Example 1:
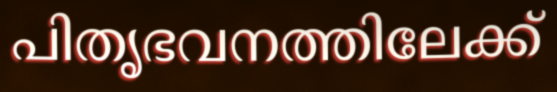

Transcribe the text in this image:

പിതൃഭവനത്തിലേക്ക്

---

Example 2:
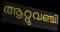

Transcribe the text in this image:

ആറ്റുവഞ്ചി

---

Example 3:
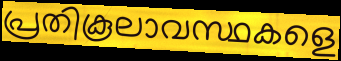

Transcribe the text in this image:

പ്രതികൂലാവസ്ഥകളെ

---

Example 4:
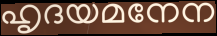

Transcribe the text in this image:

ഹൃദയമനേന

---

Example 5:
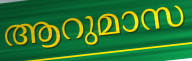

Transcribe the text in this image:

ആറുമാസ